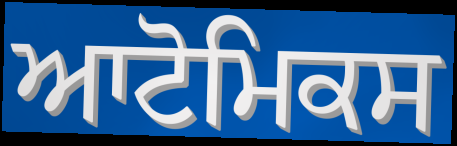
ਆਟੋਮਿਕਸ